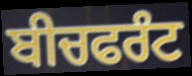
ਬੀਚਫਰੰਟ